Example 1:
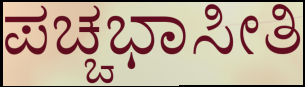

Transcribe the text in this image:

ಪಚ್ಚಭಾಸೀತಿ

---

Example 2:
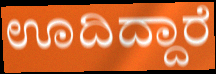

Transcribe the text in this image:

ಊದಿದ್ದಾರೆ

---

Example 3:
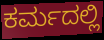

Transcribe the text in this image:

ಕರ್ಮದಲ್ಲಿ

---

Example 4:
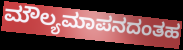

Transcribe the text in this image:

ಮೌಲ್ಯಮಾಪನದಂತಹ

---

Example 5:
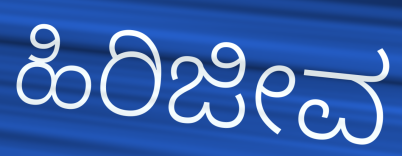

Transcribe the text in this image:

ಹಿರಿಜೀವ